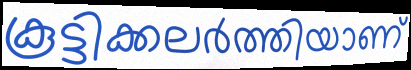
കൂട്ടിക്കലർത്തിയാണ്